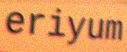
eriyum